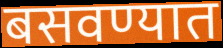
बसवण्यात